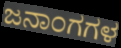
ಜನಾಂಗಗಳ